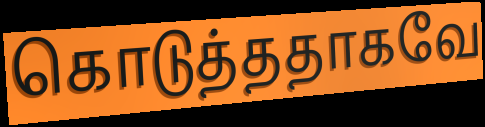
கொடுத்ததாகவே